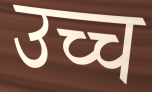
उच्च